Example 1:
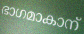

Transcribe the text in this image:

ഭാഗമാകാന്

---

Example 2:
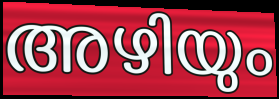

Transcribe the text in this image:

അഴിയും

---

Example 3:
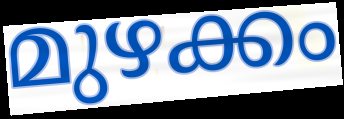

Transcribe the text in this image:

മുഴക്കം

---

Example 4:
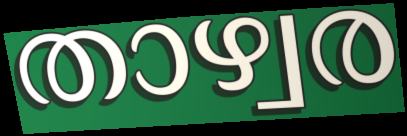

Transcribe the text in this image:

താഴ്വര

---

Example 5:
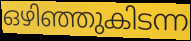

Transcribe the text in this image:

ഒഴിഞ്ഞുകിടന്ന